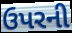
ઉપરની